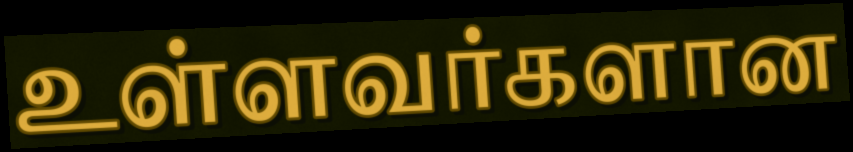
உள்ளவர்களான